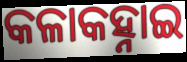
କଳାକହ୍ନାଇ